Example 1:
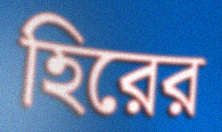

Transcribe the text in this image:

হিরের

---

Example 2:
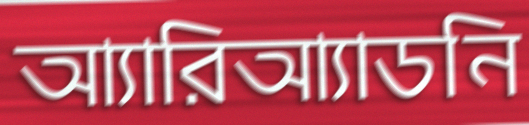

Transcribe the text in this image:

আ্যারিআ্যাডনি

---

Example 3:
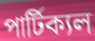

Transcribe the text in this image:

পার্টিক্যল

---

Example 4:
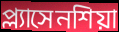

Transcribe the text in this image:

প্ল্যাসেনশিয়া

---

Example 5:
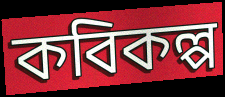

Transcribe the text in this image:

কবিকল্প